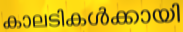
കാലടികൾക്കായി